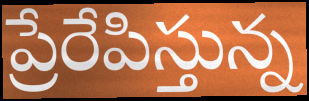
ప్రేరేపిస్తున్న